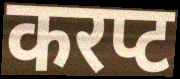
करप्ट